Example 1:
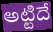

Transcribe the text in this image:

అట్టిదే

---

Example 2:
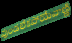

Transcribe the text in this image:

వుండలేకపోయేవాణ్ణి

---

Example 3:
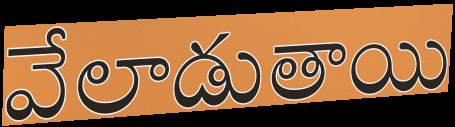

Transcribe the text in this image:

వేలాడుతాయి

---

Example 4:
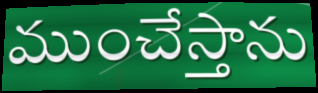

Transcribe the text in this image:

ముంచేస్తాను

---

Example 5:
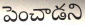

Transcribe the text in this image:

పెంచాడని